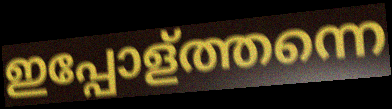
ഇപ്പോള്ത്തന്നെ